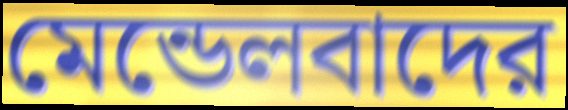
মেন্ডেলবাদের